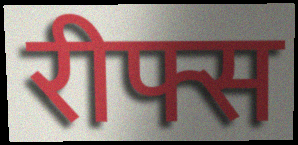
रीफ्स